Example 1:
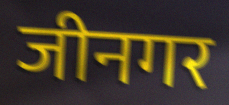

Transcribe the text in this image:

जीनगर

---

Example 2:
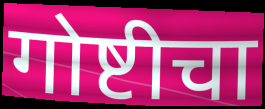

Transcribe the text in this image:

गोष्टीचा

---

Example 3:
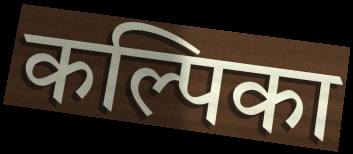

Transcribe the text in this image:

कल्पिका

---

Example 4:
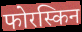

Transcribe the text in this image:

फोरस्किन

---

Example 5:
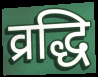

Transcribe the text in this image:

व्रद्धि